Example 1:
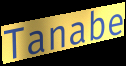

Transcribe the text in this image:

Tanabe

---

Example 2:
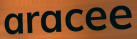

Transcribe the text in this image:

aracee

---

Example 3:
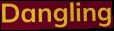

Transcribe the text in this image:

Dangling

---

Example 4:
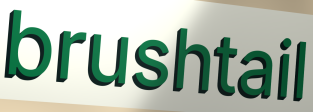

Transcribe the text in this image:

brushtail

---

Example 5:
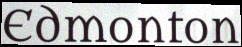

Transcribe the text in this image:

Edmonton